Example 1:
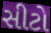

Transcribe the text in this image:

સીટો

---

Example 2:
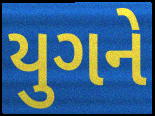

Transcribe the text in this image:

યુગને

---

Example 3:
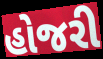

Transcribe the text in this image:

હોજરી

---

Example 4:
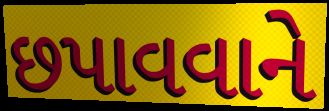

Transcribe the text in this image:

છપાવવાને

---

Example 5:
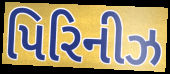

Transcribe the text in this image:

પિરિનીઝ